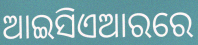
ଆଇସିଏଆରରେ